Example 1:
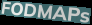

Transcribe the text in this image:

FODMAPs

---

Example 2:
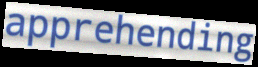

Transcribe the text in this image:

apprehending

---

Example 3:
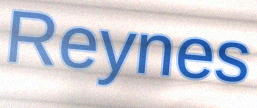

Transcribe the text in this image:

Reynes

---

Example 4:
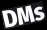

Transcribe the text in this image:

DMs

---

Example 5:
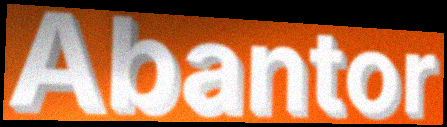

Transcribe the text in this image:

Abantor